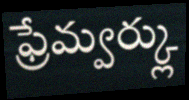
ఫ్రేమ్వర్క్లు